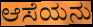
ಆಸೆಯನು